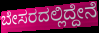
ಬೇಸರದಲ್ಲಿದ್ದೇನೆ